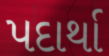
પદાર્થા